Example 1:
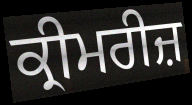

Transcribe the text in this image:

ਕ੍ਰੀਮਰੀਜ਼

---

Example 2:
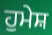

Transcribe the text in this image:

ਹੁਮੇਸ਼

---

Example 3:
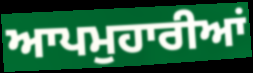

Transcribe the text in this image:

ਆਪਮੁਹਾਰੀਆਂ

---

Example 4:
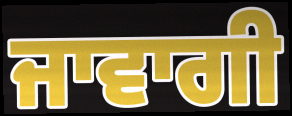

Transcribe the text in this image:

ਜਾਵਾਗੀ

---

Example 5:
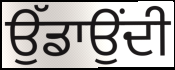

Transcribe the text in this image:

ਉੱਡਾਉਂਦੀ